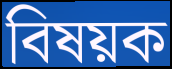
বিষয়ক